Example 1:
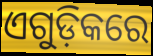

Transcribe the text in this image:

ଏଗୁଡ଼ିକରେ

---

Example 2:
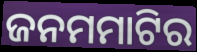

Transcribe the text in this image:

ଜନମମାଟିର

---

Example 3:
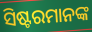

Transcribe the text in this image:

ସିଷ୍ଟରମାନଙ୍କ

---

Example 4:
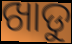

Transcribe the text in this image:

ଖାଡୁ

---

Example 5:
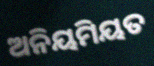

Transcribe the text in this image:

ଅନିୟମିୟତ